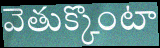
వెతుక్కొంటా